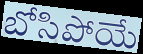
బోసిపోయే